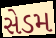
સેડમ